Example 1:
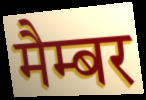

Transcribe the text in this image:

मैम्बर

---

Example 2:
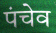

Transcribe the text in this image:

पंचेव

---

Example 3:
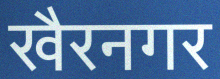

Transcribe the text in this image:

खैरनगर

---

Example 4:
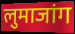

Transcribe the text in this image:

लुमाजांग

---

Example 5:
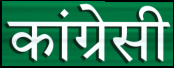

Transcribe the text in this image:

कांग्रेसी